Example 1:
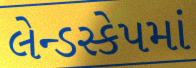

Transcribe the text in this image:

લેન્ડસ્કેપમાં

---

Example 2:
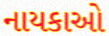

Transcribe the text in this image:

નાયકાઓ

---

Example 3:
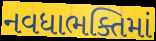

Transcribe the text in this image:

નવધાભક્તિમાં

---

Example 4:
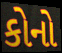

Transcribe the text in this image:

કોનો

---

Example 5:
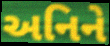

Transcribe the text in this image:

અનિને